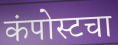
कंपोस्टचा